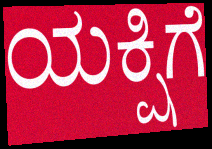
ಯಕ್ಷಿಗೆ